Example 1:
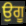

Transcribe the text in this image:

ਉਗੂ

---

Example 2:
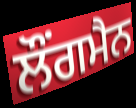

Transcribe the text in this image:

ਲੌਂਗਮੈਨ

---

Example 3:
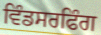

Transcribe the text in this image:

ਵਿੰਡਸਰਫਿੰਗ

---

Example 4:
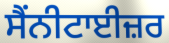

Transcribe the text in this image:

ਸੈਂਨੀਟਾਈਜ਼ਰ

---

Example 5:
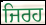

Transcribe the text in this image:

ਜਿਰਹ